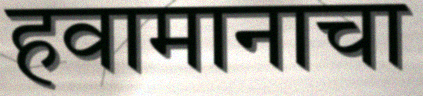
हवामानाचा